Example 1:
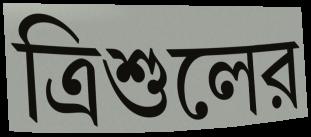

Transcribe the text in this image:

ত্রিশুলের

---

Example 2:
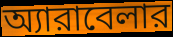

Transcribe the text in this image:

অ্যারাবেলার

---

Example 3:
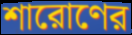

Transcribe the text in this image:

শারোণের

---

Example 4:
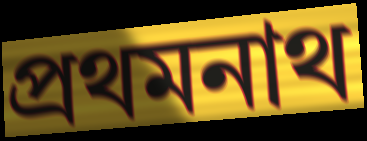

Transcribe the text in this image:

প্রথমনাথ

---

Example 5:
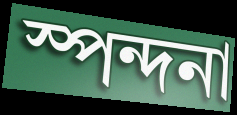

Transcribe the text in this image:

স্পন্দনা